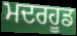
ਮਦਰਹੂਡ